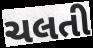
ચલતી